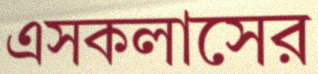
এসকলাসের